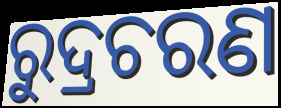
ରୁଦ୍ରଚରଣ